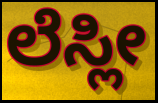
ಲೆಸ್ಲೀ